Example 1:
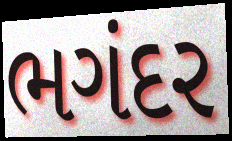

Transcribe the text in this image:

ભગંદર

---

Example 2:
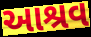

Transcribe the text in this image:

આશ્રવ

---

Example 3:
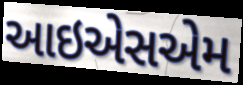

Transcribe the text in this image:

આઇએસએમ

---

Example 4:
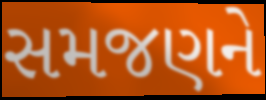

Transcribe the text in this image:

સમજણને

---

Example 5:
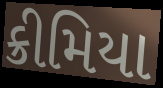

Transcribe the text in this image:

ક્રીમિયા